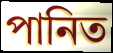
পানিত